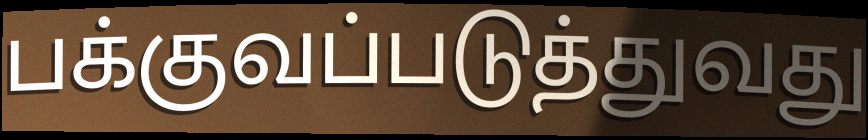
பக்குவப்படுத்துவது